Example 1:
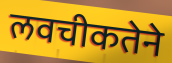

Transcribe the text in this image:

लवचीकतेने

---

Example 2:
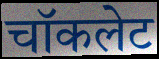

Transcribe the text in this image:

चॉकलेट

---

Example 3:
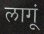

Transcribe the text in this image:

लागूं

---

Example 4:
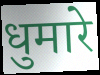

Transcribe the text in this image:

धुमारे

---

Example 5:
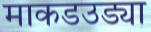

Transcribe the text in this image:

माकडउड्या